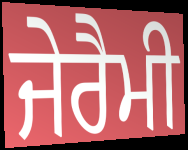
ਜੇਰੈਮੀ